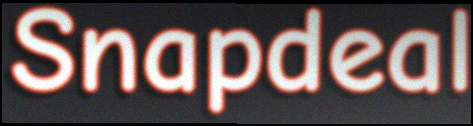
Snapdeal